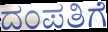
ದಂಪತಿಗೆ